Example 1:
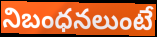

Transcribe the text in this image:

నిబంధనలుంటే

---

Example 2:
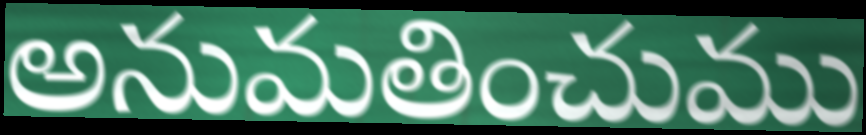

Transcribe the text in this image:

అనుమతించుము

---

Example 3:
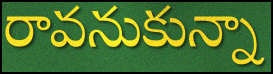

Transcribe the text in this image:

రావనుకున్నా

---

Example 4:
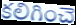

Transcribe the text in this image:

కలిగించె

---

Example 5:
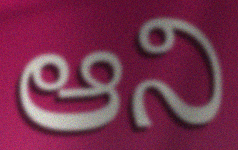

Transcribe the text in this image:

ఆని